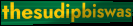
thesudipbiswas